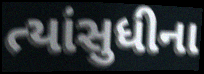
ત્યાંસુધીના